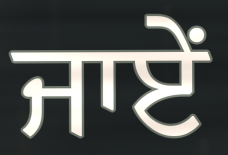
ਜਾਏਂ